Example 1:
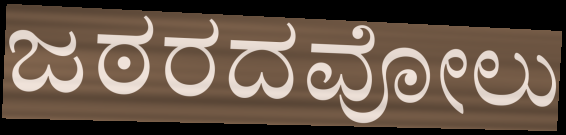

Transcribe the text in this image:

ಜಠರದವೋಲು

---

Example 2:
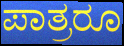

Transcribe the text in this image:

ಪಾತ್ರರೂ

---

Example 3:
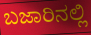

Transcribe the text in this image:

ಬಜಾರಿನಲ್ಲಿ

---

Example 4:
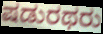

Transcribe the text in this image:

ಷಡುರಥರು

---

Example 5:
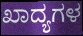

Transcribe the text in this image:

ಖಾದ್ಯಗಳ